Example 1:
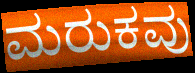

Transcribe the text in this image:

ಮರುಕವು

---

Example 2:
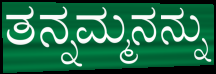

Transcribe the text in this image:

ತನ್ನಮ್ಮನನ್ನು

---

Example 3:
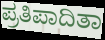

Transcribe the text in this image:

ಪ್ರತಿಪಾದಿತಾ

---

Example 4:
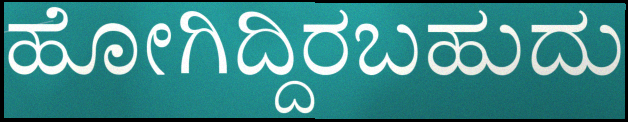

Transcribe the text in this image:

ಹೋಗಿದ್ದಿರಬಹುದು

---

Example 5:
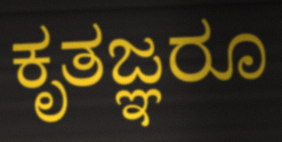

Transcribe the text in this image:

ಕೃತಜ್ಞರೂ